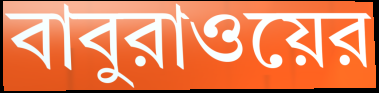
বাবুরাওয়ের